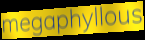
megaphyllous